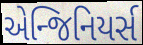
એન્જિનિયર્સ